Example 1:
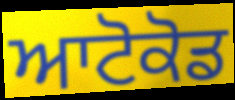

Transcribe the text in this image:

ਆਟੋਕੋਡ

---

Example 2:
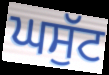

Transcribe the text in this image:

ਘਸੁੱਟ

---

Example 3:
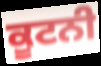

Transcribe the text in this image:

ਕੂਟਨੀ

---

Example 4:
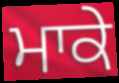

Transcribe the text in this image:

ਮਾਕੇ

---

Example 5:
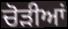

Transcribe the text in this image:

ਚੋੜੀਆਂ